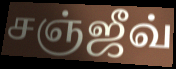
சஞ்ஜீவ்